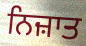
ਨਿਜ਼ਾਤ